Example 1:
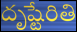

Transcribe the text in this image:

దృష్టేరితి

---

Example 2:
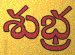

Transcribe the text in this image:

శుభ్ర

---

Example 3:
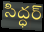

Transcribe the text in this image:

సిద్ధర్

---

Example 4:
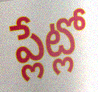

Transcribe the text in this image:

ప్లేట్లో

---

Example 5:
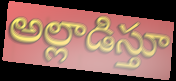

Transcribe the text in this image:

అల్లాడిస్తూ